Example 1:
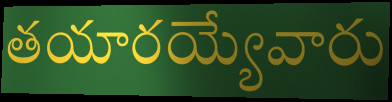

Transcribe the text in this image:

తయారయ్యేవారు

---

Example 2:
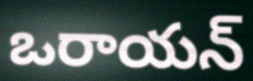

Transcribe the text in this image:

ఒరాయన్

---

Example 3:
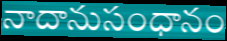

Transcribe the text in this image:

నాదానుసంధానం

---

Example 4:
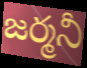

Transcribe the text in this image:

జర్మనీ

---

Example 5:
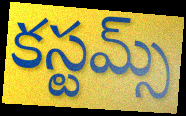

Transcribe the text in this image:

కస్టమ్స్